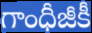
గాంధీజీకీ